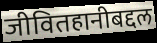
जीवितहानीबद्दल